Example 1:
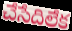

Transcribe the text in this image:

చేసేదిలేక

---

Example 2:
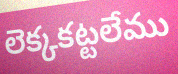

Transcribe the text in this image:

లెక్కకట్టలేము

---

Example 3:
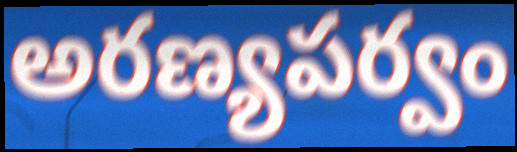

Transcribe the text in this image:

అరణ్యపర్వం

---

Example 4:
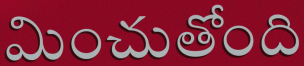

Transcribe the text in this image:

మించుతోంది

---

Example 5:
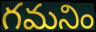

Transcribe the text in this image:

గమనిం